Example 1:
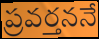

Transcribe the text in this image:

ప్రవర్తననే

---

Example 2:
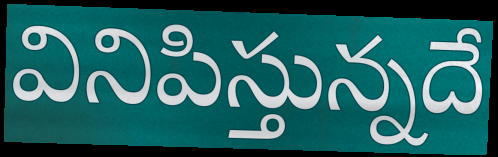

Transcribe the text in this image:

వినిపిస్తున్నదే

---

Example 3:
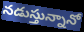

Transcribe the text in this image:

నడుస్తున్నానో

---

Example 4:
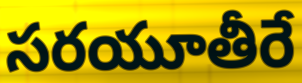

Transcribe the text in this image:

సరయూతీరే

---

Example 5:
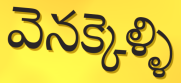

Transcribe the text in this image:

వెనక్కెళ్ళి